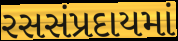
રસસંપ્રદાયમાં